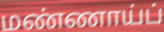
மண்ணாய்ப்